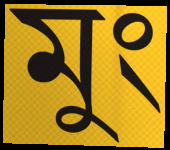
মুং